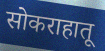
सोकराहातू